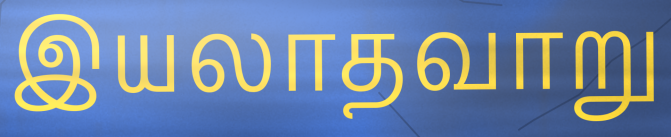
இயலாதவாறு